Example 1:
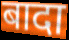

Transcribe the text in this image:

बादा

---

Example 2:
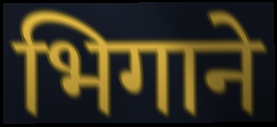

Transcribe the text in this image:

भिगाने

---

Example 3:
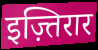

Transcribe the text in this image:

इज़्तिरार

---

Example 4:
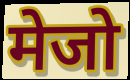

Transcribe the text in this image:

मेजो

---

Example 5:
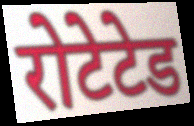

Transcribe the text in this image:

रोटेटेड